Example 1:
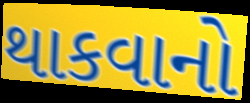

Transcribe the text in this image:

થાકવાનો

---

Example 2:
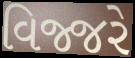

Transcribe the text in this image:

વિજ્જરે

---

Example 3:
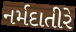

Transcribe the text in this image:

નર્મદાતીરે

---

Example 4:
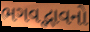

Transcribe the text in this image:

ભગવદ્ભાવનો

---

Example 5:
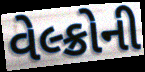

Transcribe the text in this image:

વેલ્ક્રોની